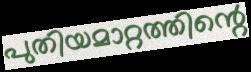
പുതിയമാറ്റത്തിന്റെ